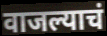
वाजल्याचं